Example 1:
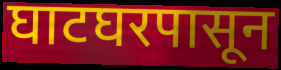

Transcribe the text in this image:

घाटघरपासून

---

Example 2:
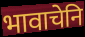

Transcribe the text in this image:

भावाचेनि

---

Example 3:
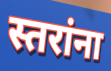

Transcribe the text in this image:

स्तरांना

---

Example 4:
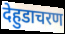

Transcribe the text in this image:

देहुडाचरण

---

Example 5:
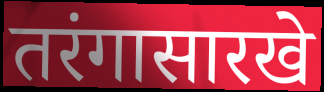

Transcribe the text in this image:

तरंगासारखे